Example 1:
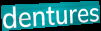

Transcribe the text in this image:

dentures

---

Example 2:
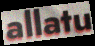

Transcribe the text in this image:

allatu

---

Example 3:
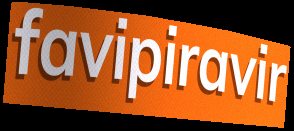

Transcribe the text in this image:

favipiravir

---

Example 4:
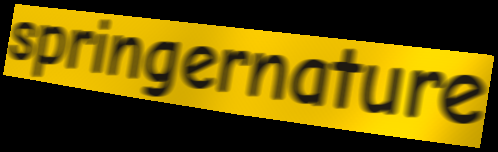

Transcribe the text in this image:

springernature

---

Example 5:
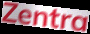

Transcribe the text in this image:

Zentra